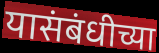
यासंबंधीच्या